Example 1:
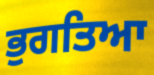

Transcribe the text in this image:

ਭੁਗਤਿਆ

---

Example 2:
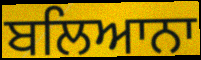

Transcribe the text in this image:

ਬਲਿਆਨਾ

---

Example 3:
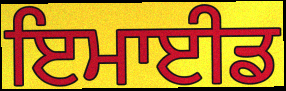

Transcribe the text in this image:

ਇਮਾਈਡ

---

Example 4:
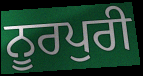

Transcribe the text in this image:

ਨੂਰਪੁਰੀ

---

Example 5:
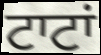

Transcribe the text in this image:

ਟਾਟਾਂ